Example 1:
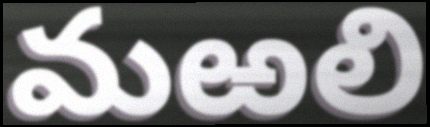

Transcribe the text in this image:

మఱలి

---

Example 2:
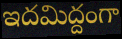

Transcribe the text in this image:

ఇదమిద్దంగా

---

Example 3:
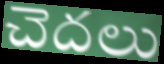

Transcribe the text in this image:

చెదలు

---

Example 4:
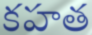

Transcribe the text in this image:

కహత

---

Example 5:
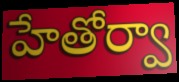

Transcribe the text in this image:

హేతోర్వా